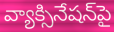
వ్యాక్సినేషన్‌పై